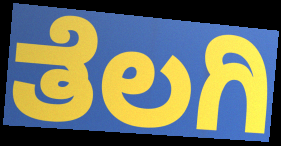
ತೆಲಗಿ